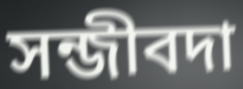
সন্জীবদা